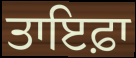
ਤਾਇਫ਼ਾ